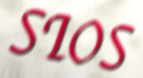
SIOS